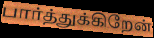
பார்த்துக்கிறேன்